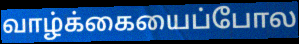
வாழ்க்கையைப்போல